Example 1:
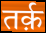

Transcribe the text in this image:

तर्क़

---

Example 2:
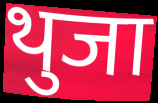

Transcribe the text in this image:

थुजा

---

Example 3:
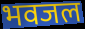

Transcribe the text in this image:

भवजल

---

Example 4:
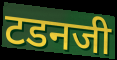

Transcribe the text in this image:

टडनजी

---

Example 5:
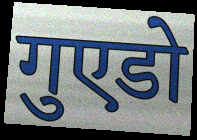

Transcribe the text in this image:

गुएडो